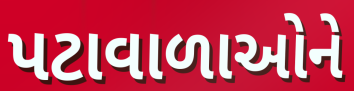
પટાવાળાઓને